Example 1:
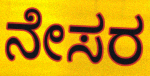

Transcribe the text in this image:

ನೇಸರ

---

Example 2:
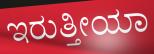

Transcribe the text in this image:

ಇರುತ್ತೀಯಾ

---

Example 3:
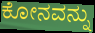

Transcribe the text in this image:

ಕೋನವನ್ನು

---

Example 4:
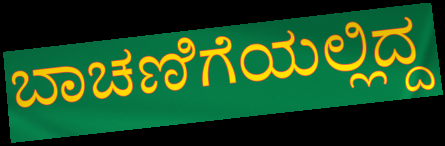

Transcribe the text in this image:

ಬಾಚಣಿಗೆಯಲ್ಲಿದ್ದ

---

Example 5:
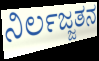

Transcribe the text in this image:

ನಿರ್ಲಜ್ಜತನ